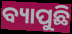
ବ୍ୟାପୁଛି